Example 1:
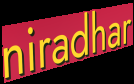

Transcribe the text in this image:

niradhar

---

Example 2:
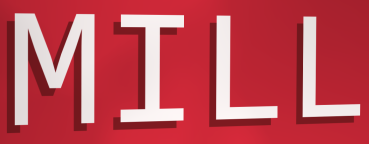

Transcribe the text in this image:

MILL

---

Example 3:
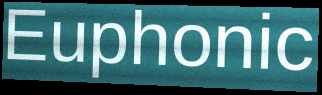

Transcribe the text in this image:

Euphonic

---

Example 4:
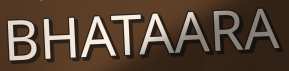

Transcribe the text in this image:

BHATAARA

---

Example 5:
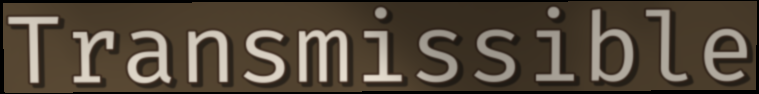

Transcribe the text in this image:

Transmissible